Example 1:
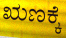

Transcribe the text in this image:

ಋಣಕ್ಕೆ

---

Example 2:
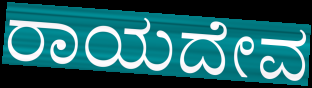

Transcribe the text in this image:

ರಾಯದೇವ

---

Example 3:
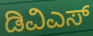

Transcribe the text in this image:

ಡಿವಿಎಸ್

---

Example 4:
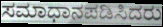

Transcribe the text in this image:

ಸಮಾಧಾನಪಡಿಸಿದರು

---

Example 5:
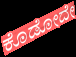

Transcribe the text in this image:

ಕೊಡೋದೇ